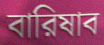
বারিষাব